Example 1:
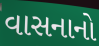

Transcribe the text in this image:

વાસનાનો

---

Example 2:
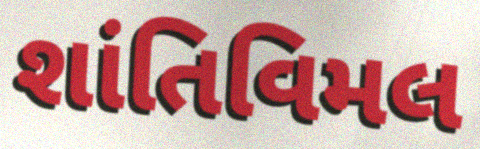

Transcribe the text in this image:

શાંતિવિમલ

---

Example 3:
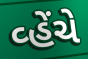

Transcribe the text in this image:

વ્હેંચે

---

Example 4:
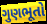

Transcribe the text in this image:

ગુણભૂતો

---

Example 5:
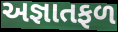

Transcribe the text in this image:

અજ્ઞાતફળ